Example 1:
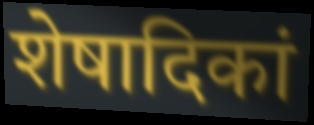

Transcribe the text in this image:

शेषादिकां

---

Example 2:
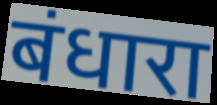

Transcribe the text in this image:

बंधारा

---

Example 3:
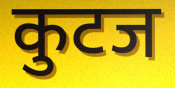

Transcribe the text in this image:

कुटज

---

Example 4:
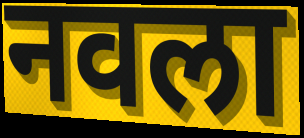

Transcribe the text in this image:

नवला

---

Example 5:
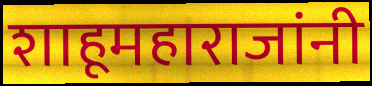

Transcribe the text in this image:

शाहूमहाराजांनी